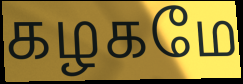
கழகமே